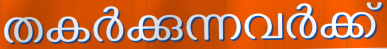
തകർക്കുന്നവർക്ക്